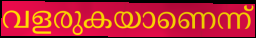
വളരുകയാണെന്ന്